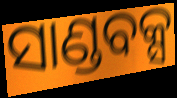
ସାଣ୍ଡବକ୍ସ